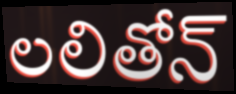
లలితోన్